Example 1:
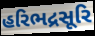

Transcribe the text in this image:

હરિભદ્રસૂરિ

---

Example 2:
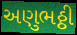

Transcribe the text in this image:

અણુભઠ્ઠી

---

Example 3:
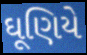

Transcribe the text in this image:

ઘૂણિયે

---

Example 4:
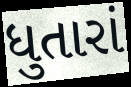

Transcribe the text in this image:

ધુતારાં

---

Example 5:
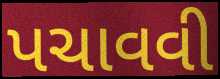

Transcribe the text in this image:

પચાવવી